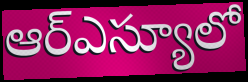
ఆర్ఎస్యూలో